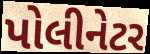
પોલીનેટર